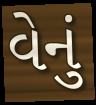
વેનું